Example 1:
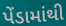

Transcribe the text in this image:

પેંડામાંથી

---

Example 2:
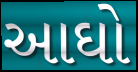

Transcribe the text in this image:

આઘો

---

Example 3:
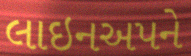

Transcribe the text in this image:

લાઇનઅપને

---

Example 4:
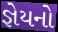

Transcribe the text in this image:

જ્ઞેયનો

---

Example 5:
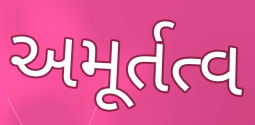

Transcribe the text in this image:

અમૂર્તત્વ